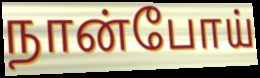
நான்போய்